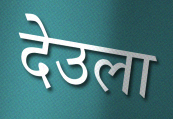
देउला